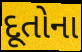
દૂતોના